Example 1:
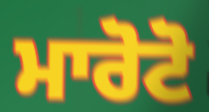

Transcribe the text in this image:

ਮਾਰੋਟੋ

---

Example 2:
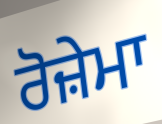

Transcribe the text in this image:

ਰੋਜ਼ੇਮਾ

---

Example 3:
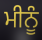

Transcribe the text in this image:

ਮੀਨੂੰ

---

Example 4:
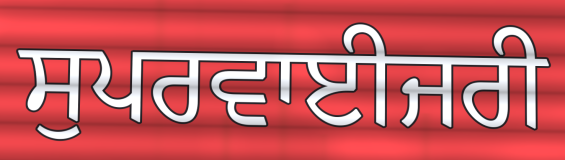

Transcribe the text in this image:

ਸੁਪਰਵਾਈਜਰੀ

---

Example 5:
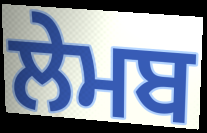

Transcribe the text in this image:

ਲੇਮਬ